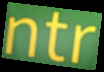
ntr